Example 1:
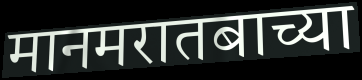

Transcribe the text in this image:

मानमरातबाच्या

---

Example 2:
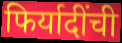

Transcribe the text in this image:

फिर्यादींची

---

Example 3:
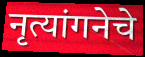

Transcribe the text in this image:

नृत्यांगनेचे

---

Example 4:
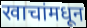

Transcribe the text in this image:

खाचांमधून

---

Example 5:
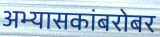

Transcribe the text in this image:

अभ्यासकांबरोबर